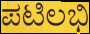
ಪಟಿಲಭಿ